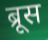
ब्रूस